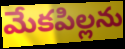
మేకపిల్లను